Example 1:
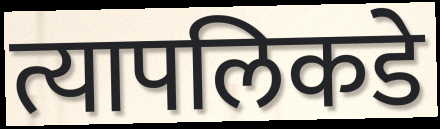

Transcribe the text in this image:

त्यापलिकडे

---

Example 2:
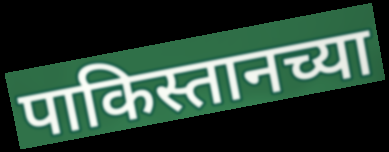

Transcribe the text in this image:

पाकिस्तानच्या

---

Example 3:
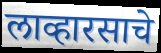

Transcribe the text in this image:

लाव्हारसाचे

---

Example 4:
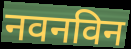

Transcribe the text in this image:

नवनविन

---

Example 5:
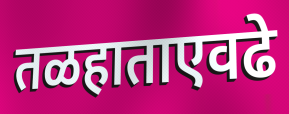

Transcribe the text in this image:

तळहाताएवढे